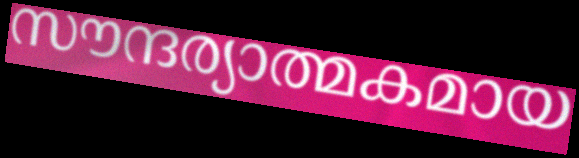
സൗന്ദര്യാത്മകമായ